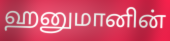
ஹனுமானின்